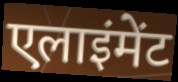
एलाइंमेंट